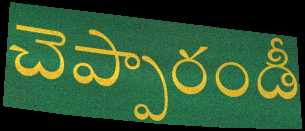
చెప్పారండీ